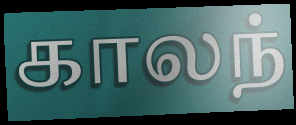
காலந்